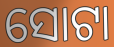
ସୋଟା